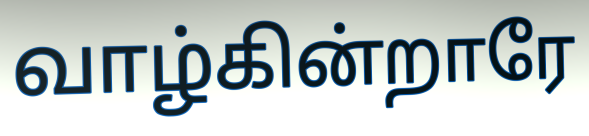
வாழ்கின்றாரே